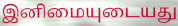
இனிமையுடையது